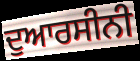
ਦੁਆਰਸੀਨੀ